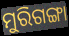
ମୁରିଗଙ୍ଗା